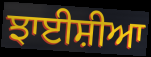
ਝਾਈਸ਼ੀਆ